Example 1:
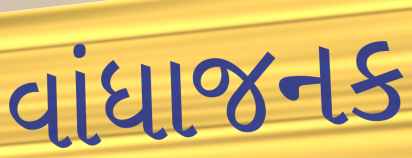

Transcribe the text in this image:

વાંધાજનક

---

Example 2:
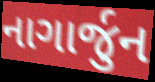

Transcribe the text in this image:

નાગાર્જુન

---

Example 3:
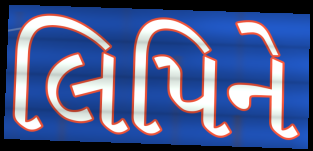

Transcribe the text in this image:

લિપિને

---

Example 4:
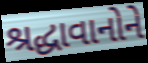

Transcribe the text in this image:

શ્રદ્ધાવાનોને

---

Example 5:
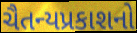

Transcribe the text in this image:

ચૈતન્યપ્રકાશનો